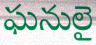
ఘనులై